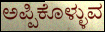
ಅಪ್ಪಿಕೊಳ್ಳುವ